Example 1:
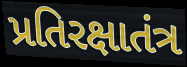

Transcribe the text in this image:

પ્રતિરક્ષાતંત્ર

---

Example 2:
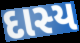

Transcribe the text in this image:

દાસ્ય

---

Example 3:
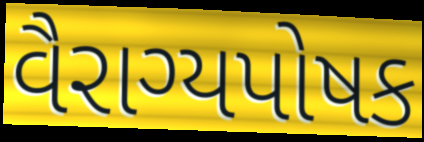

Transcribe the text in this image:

વૈરાગ્યપોષક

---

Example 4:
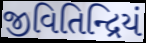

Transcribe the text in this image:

જીવિતિન્દ્રિયં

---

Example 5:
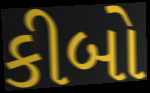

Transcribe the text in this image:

કીબો